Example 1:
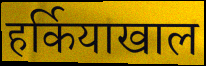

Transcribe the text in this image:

हर्कियाखाल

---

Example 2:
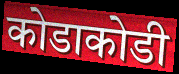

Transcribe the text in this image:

कोडाकोडी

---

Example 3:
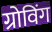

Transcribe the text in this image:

ग्रोविंग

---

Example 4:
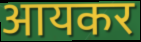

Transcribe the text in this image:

आयकर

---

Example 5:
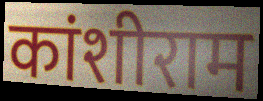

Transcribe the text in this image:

कांशीराम